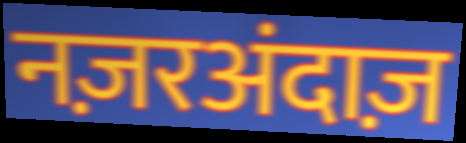
नज़रअंदाज़